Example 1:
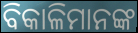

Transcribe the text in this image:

ବିକାଳିମାନଙ୍କ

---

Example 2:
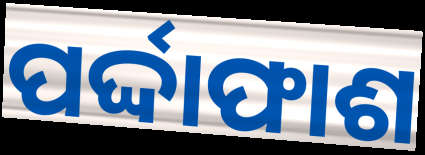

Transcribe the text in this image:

ପର୍ଦ୍ଦାଫାଶ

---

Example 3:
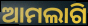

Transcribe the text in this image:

ଆମଲାଗି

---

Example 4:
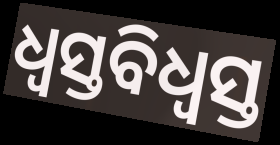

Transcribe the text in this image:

ଧ୍ୱସ୍ତବିଧ୍ୱସ୍ତ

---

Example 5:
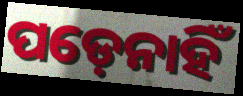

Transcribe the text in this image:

ପଡ଼େନାହିଁ